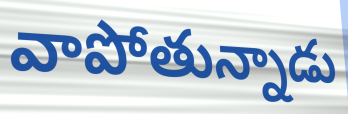
వాపోతున్నాడు